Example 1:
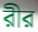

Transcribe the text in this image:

রীর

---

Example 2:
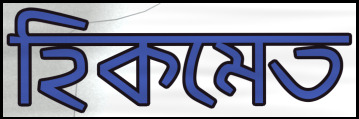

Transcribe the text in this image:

হিকমেত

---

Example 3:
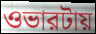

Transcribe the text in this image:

ওভারটায়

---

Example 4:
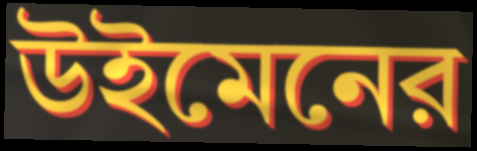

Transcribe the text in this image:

উইমেনের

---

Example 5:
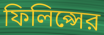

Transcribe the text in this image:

ফিলিপ্সের